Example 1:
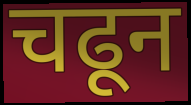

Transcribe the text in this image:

चढून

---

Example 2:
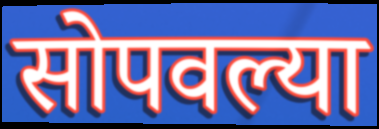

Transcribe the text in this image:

सोपवल्या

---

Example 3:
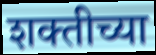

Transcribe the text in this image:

शक्तीच्या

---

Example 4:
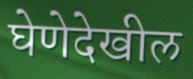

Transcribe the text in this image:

घेणेदेखील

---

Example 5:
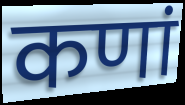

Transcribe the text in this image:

कणां